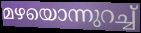
മഴയൊന്നുറച്ച്